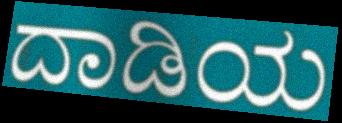
ದಾಡಿಯ